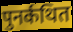
पुनर्कथित